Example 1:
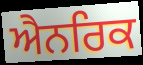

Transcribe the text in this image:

ਐਨਰਿਕ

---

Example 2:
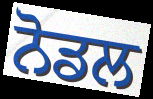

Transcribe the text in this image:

ਨੋਡਲ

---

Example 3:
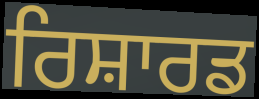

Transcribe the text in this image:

ਰਿਸ਼ਾਰਡ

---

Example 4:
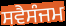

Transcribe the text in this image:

ਸਵੈਸੰਜਮ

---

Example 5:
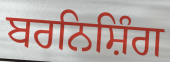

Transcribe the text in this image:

ਬਰਨਿਸ਼ਿੰਗ